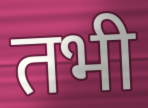
तभी